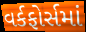
વર્કફોર્સમાં